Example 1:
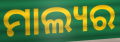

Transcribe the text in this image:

ମାଲ୍ୟର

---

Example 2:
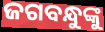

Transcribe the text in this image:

ଜଗବନ୍ଧୁଙ୍କୁ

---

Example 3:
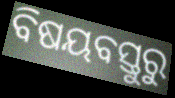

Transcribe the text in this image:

ବିଷୟବସ୍ତୁରୁ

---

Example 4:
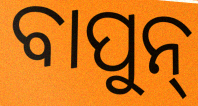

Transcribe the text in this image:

ବାପୁନ୍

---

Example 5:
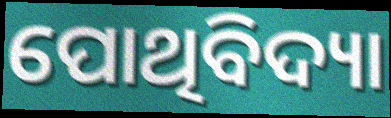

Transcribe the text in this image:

ପୋଥିବିଦ୍ୟା